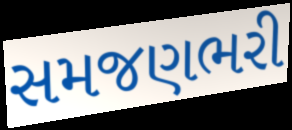
સમજણભરી